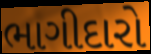
ભાગીદારો